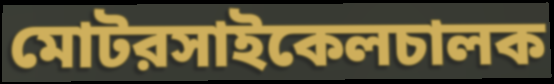
মোটরসাইকেলচালক